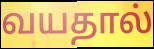
வயதால்